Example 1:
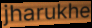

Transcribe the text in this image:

jharukhe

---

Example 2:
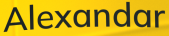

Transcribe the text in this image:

Alexandar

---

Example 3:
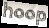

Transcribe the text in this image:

hoop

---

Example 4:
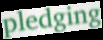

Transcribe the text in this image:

pledging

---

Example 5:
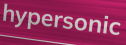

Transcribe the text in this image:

hypersonic